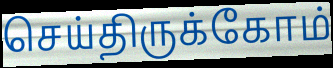
செய்திருக்கோம்